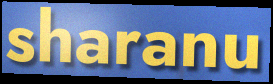
sharanu